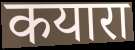
कयारा